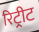
रिट्रीट